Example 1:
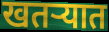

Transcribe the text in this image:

खतऱ्यात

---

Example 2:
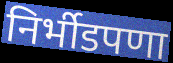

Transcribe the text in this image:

निर्भीडपणा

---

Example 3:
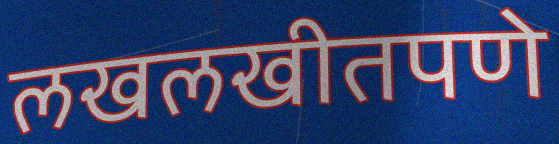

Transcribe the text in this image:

लखलखीतपणे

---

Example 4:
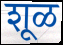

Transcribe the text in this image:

शूळ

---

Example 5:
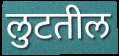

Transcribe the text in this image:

लुटतील